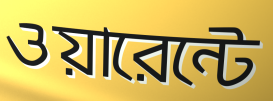
ওয়ারেন্টে